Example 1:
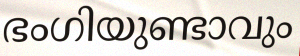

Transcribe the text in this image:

ഭംഗിയുണ്ടാവും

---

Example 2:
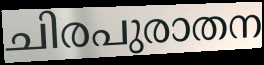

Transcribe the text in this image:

ചിരപുരാതന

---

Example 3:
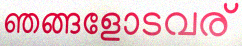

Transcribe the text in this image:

ഞങ്ങളോടവര്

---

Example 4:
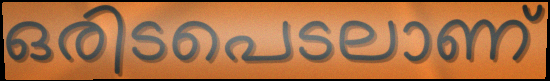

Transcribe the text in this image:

ഒരിടപെടലാണ്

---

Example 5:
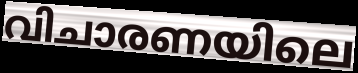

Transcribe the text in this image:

വിചാരണയിലെ